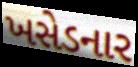
ખસેડનાર